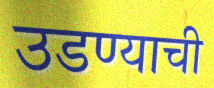
उडण्याची